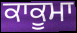
ਕਾਕੂਮਾ